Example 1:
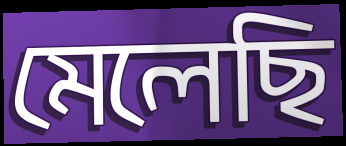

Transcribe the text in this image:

মেলেছি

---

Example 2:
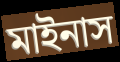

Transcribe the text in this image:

মাইনাস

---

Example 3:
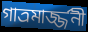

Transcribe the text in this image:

গাত্রমার্জ্জনী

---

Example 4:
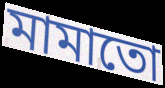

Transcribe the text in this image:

মামাতো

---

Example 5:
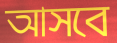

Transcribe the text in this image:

আসবে